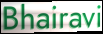
Bhairavi